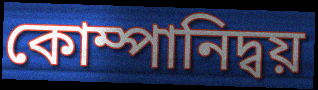
কোম্পানিদ্বয়